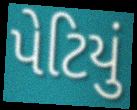
પેટિયું